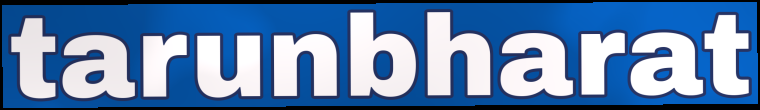
tarunbharat